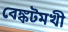
বেঙ্কটমখী